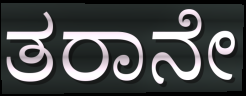
ತರಾನೇ